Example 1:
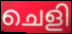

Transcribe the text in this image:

ചെളി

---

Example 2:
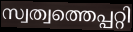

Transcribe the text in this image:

സ്വത്വത്തെപ്പറ്റി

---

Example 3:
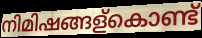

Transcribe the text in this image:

നിമിഷങ്ങള്കൊണ്ട്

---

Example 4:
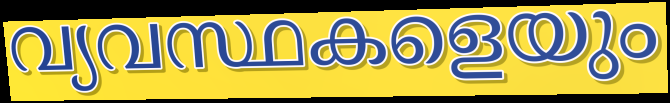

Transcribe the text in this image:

വ്യവസ്ഥകളെയും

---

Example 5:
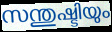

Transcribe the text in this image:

സന്തുഷ്ടിയും